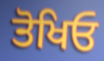
ਤੋਖਿਓ